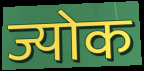
ज्योक